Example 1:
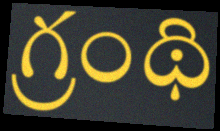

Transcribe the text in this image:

గ్రంథి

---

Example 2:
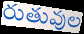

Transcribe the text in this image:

రుతువుల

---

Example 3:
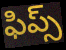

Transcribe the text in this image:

ఫిప్స్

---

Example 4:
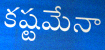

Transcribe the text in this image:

కష్టమేనా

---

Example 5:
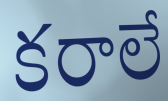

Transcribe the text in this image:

కరాలే